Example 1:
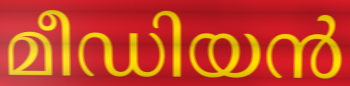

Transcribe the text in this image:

മീഡിയൻ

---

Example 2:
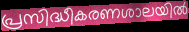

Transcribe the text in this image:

പ്രസിദ്ധീകരണശാലയിൽ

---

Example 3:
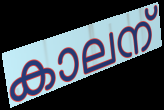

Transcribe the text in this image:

കാലന്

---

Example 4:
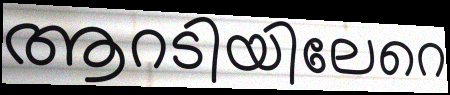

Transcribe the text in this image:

ആറടിയിലേറെ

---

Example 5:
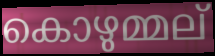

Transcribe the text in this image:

കൊഴുമ്മല്